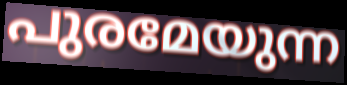
പുരമേയുന്ന